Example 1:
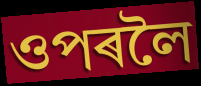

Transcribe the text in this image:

ওপৰলৈ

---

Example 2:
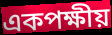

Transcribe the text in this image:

একপক্ষীয়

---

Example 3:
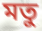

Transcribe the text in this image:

মতু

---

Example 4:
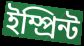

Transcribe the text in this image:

ইম্প্ৰিন্ট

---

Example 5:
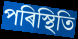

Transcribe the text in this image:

পৰিস্থিতি